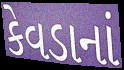
કેવડાનાં